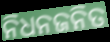
ନିଧନଜନିତ